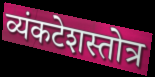
व्यंकटेशस्तोत्र